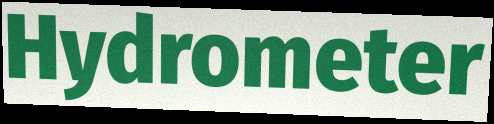
Hydrometer